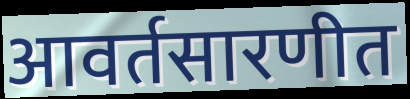
आवर्तसारणीत